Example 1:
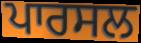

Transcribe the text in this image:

ਪਾਰਸਲ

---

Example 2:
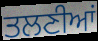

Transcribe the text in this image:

ਤਲਣੀਆਂ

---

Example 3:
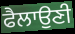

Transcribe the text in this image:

ਫੈਲਾਉਣੀ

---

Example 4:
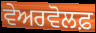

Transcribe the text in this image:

ਵੇਅਰਵੋਲਫ਼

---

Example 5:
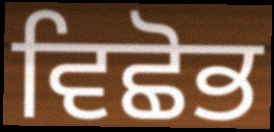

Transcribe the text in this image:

ਵਿਛੋਭ